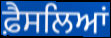
ਫ਼ੈਸਲਿਆਂ